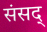
संसद्